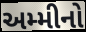
અમ્મીનો